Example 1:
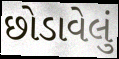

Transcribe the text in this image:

છોડાવેલું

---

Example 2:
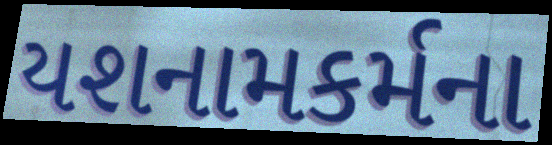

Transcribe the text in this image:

યશનામકર્મના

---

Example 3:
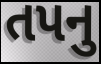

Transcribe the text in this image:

તપનુ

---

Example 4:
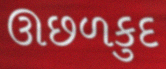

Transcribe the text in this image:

ઊછળકુદ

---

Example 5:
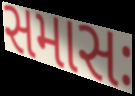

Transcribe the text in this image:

સમાસઃ